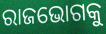
ରାଜଭୋଗକୁ